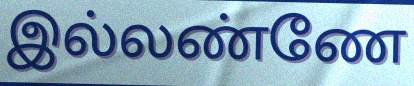
இல்லண்ணே